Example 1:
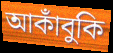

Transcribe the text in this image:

আকাঁবুকি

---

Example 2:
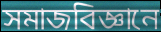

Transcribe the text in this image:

সমাজবিজ্ঞানে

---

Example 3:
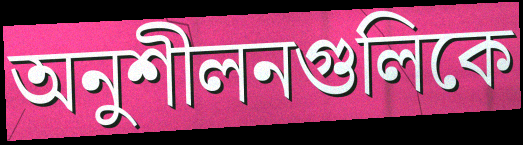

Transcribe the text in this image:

অনুশীলনগুলিকে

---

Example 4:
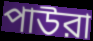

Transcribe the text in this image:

পাউরা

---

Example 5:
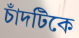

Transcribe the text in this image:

চাঁদটিকে